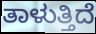
ತಾಳುತ್ತಿದೆ